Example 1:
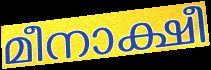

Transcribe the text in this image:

മീനാക്ഷീ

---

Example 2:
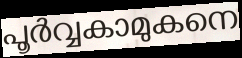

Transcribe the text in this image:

പൂർവ്വകാമുകനെ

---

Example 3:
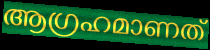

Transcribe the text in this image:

ആഗ്രഹമാണത്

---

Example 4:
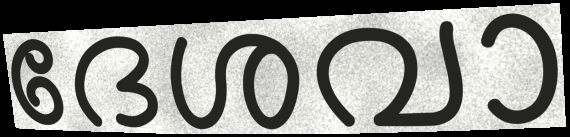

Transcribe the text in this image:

ദേശവാ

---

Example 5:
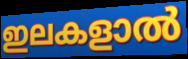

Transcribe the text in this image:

ഇലകളാൽ